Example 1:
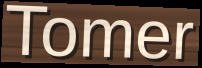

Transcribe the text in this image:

Tomer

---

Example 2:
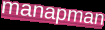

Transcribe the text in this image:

manapman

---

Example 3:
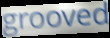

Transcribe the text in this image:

grooved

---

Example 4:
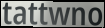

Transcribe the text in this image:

tattwno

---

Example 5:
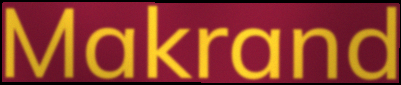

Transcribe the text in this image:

Makrand